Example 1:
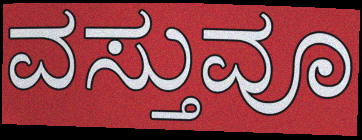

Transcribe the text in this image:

ವಸ್ತುವೂ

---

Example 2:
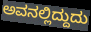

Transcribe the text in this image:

ಅವನಲ್ಲಿದ್ದುದು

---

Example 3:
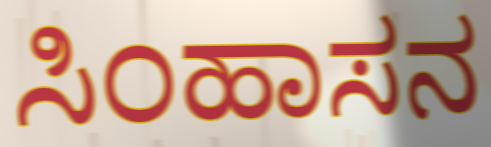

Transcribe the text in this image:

ಸಿಂಹಾಸನ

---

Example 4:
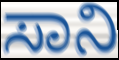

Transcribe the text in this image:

ಸಾನಿ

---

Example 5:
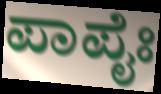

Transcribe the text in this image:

ಪಾಪೈಃ